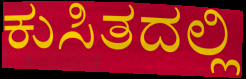
ಕುಸಿತದಲ್ಲಿ